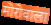
मोरोवाला